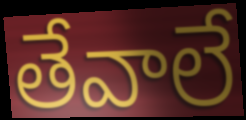
తేవాలే